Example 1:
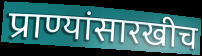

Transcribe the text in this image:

प्राण्यांसारखीच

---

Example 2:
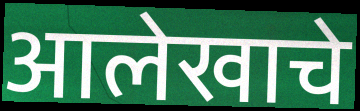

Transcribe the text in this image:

आलेखाचे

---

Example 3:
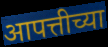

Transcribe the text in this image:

आपत्तीच्या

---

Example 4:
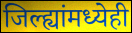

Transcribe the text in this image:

जिल्ह्यांमध्येही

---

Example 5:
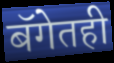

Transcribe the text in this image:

बॅगेतही